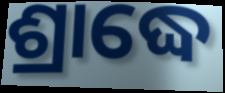
ଶ୍ରାଦ୍ଧେ